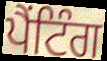
ਪੈਂਟਿੰਗ